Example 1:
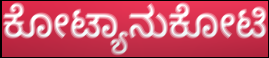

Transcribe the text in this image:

ಕೋಟ್ಯಾನುಕೋಟಿ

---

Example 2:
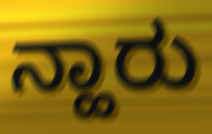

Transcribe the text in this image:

ನ್ಹಾರು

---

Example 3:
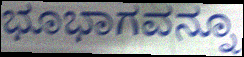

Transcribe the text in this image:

ಭೂಭಾಗವನ್ನೂ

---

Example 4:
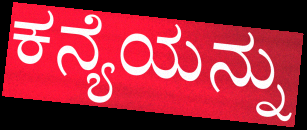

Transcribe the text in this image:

ಕನ್ಯೆಯನ್ನು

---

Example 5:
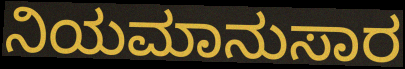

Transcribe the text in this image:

ನಿಯಮಾನುಸಾರ